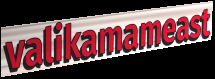
valikamameast